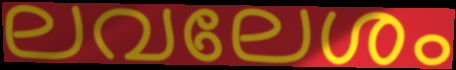
ലവലേശം